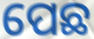
ପେଛ